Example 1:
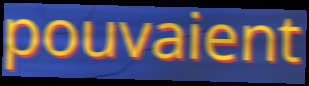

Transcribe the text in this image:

pouvaient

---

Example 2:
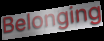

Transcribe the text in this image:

Belonging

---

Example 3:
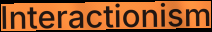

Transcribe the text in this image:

Interactionism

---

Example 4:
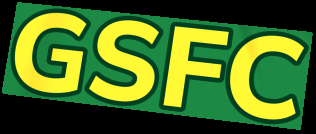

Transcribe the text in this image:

GSFC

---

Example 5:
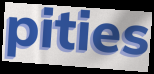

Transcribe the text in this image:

pities